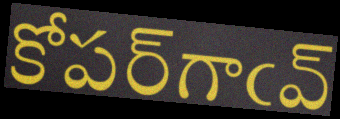
కోపర్‌గాఁవ్